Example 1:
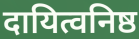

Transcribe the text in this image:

दायित्वनिष्ठ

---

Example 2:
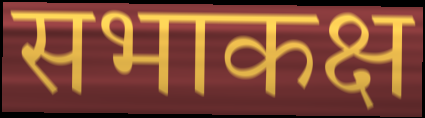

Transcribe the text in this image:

सभाकक्ष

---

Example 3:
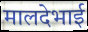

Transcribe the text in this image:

मालदेभाई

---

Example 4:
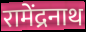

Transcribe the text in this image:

रामेंद्रनाथ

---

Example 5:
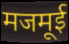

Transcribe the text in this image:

मजमूई